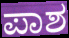
ಪಾಶ